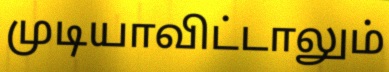
முடியாவிட்டாலும்